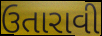
ઉતારાવી